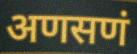
अणसणं